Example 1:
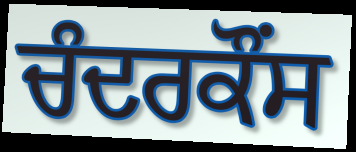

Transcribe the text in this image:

ਚੰਦਰਕੌਂਸ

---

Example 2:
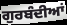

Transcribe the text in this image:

ਗੁਰਬੰਦੀਆਂ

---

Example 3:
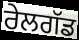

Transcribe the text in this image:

ਰੇਲਗੱਡ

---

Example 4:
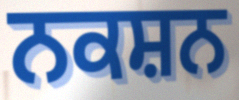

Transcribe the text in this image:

ਨਕਸ਼ਨ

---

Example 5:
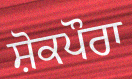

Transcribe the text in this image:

ਸ਼ੋਕਪੌਰਾ